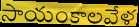
సాయంకాలవేళ